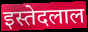
इस्तेदलाल